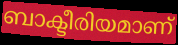
ബാക്ടീരിയമാണ്